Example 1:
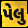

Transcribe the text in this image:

પેલુ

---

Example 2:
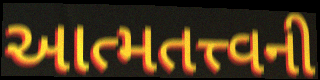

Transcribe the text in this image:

આત્મતત્ત્વની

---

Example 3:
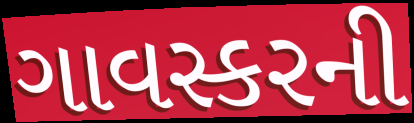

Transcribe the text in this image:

ગાવસ્કરની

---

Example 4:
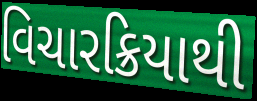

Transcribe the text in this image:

વિચારક્રિયાથી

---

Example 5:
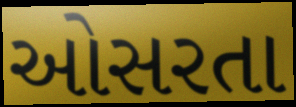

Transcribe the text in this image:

ઓસરતા